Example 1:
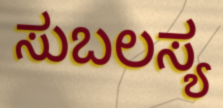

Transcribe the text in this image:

ಸುಬಲಸ್ಯ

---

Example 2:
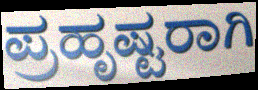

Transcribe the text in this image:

ಪ್ರಹೃಷ್ಟರಾಗಿ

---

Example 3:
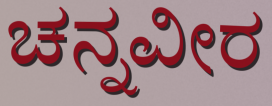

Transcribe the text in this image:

ಚನ್ನವೀರ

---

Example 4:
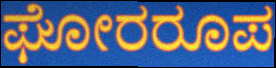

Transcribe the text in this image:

ಘೋರರೂಪ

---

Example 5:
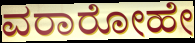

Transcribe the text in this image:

ವರಾರೋಹೇ